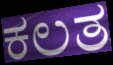
ಕಲತ